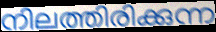
നിലത്തിരിക്കുന്ന